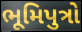
ભૂમિપુત્રો